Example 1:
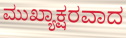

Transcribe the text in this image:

ಮುಖ್ಯಾಕ್ಷರವಾದ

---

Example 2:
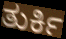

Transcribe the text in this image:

ತುರ್ಕಿ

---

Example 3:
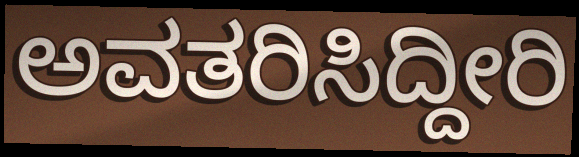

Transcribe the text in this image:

ಅವತರಿಸಿದ್ದೀರಿ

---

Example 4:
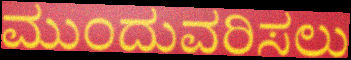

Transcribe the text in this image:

ಮುಂದುವರಿಸಲು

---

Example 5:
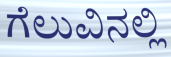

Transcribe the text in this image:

ಗೆಲುವಿನಲ್ಲಿ